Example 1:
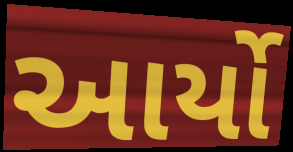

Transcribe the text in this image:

આર્યો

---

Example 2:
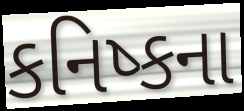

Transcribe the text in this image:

કનિષ્કના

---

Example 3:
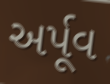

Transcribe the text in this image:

અર્પૂવ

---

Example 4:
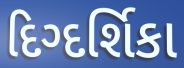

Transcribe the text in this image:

દિગ્દર્શિકા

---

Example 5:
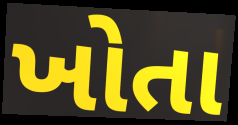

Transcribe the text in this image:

ખોતા